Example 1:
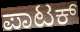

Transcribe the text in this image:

ಪಾಟಕ್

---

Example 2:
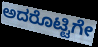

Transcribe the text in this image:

ಅದರೊಟ್ಟಿಗೇ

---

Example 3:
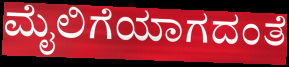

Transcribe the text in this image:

ಮೈಲಿಗೆಯಾಗದಂತೆ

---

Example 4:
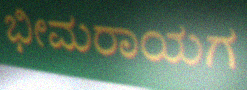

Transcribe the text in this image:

ಭೀಮರಾಯಗ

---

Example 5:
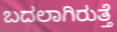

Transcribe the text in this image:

ಬದಲಾಗಿರುತ್ತೆ